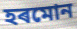
হৰমোন